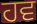
ਹਵ